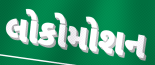
લોકોમોશન